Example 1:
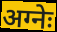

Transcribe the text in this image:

अग्नेः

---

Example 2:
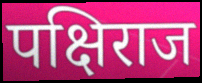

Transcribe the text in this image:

पक्षिराज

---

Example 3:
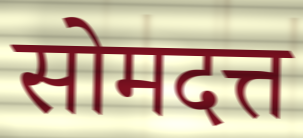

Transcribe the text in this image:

सोमदत्त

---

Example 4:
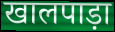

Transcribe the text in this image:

खालपाड़ा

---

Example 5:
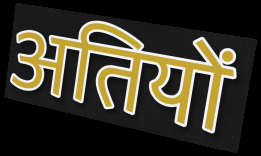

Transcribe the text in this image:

अतियों